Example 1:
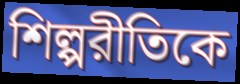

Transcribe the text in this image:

শিল্পরীতিকে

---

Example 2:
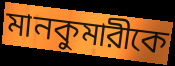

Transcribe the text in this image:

মানকুমারীকে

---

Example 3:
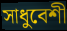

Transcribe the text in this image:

সাধুবেশী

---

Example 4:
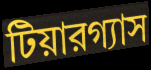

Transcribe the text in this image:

টিয়ারগ্যাস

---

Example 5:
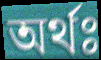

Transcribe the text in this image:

অর্থঃ